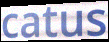
catus